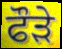
ਫੌੜੇ